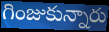
గింజుకున్నారు